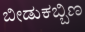
ಬೀಡುಕಬ್ಬಿಣ